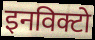
इनविक्टो